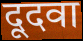
दूदवा